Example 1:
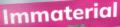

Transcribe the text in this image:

Immaterial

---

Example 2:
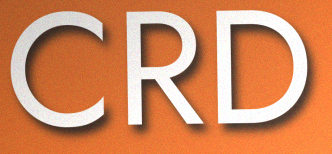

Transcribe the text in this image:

CRD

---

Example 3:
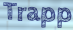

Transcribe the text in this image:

Trapp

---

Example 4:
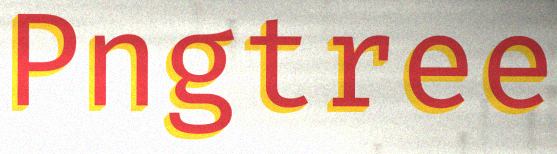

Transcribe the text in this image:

Pngtree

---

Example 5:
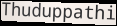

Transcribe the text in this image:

Thuduppathi